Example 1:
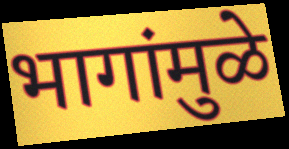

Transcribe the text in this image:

भागांमुळे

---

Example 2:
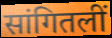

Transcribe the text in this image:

सांगितलीं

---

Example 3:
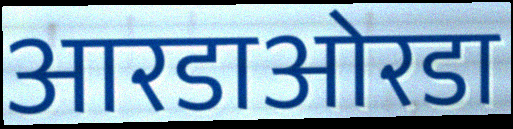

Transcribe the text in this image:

आरडाओरडा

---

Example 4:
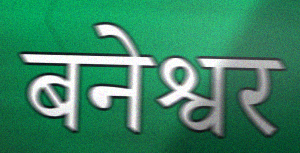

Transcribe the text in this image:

बनेश्वर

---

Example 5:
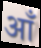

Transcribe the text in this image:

आँ